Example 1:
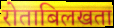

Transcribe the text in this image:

रोताबिलखता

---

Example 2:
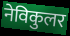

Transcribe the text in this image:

नेविकुलर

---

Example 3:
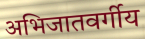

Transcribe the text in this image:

अभिजातवर्गीय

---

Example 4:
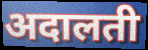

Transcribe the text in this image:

अदालती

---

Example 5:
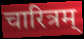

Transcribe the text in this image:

चारित्रम्